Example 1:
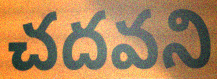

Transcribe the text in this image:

చదవని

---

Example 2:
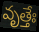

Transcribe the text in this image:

వృత్తేః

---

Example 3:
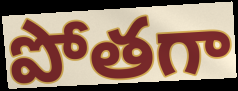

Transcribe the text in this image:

పోతగా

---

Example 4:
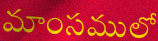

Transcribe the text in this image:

మాంసములో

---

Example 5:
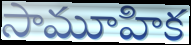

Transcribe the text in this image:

సామూహిక